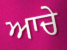
ਆਚੇ